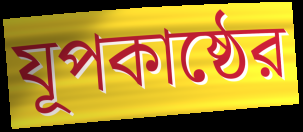
যূপকাষ্ঠের